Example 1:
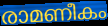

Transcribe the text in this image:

രാമണീകം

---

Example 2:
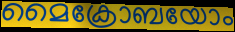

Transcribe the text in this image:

മൈക്രോബയോം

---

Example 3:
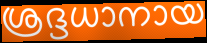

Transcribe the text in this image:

ശ്രദ്ദധാനായ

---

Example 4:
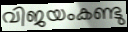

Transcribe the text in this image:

വിജയംകണ്ടു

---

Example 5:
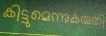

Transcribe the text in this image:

കിട്ടുമെന്നുകരുതി